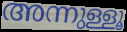
അന്നുള്ളൂ